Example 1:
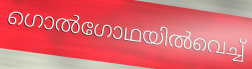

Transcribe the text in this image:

ഗൊൽഗോഥയിൽവെച്ച്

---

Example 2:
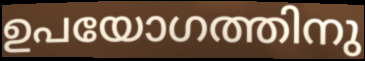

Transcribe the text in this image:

ഉപയോഗത്തിനു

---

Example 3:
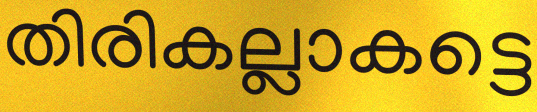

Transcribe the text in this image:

തിരികല്ലാകട്ടെ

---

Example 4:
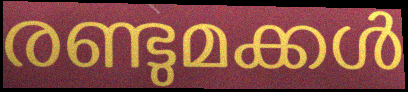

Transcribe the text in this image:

രണ്ടുമക്കൾ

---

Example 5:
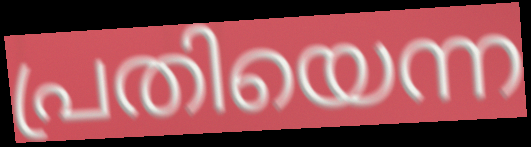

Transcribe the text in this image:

പ്രതിയെന്ന